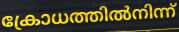
ക്രോധത്തിൽനിന്ന്